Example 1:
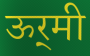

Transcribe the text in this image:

ऊर्मी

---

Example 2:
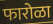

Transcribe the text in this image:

फारोळा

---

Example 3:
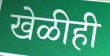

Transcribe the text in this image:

खेळीही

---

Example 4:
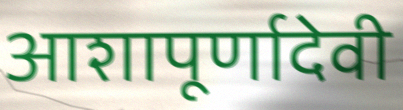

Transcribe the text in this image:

आशापूर्णादेवी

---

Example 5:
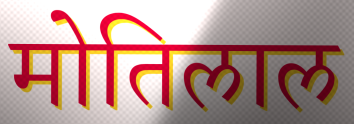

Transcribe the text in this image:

मोतिलाल